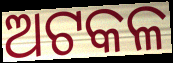
ଅଟକଳ